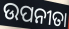
ଉପନୀତା